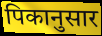
पिकानुसार